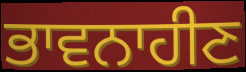
ਭਾਵਨਾਹੀਣ